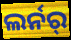
ଲର୍ନର୍